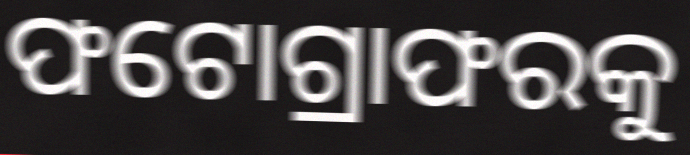
ଫଟୋଗ୍ରାଫରକୁ